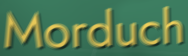
Morduch